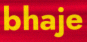
bhaje